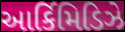
આર્કિમિડિઝે